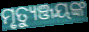
ମୃତ୍ୟୁଞ୍ଜୟଙ୍କ